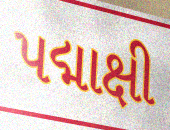
પદ્માક્ષી